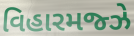
વિહારમજ્ઝે